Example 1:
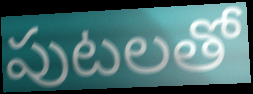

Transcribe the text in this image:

పుటలతో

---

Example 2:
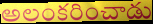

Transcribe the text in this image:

అలంకరించాడు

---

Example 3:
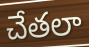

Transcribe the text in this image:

చేతలా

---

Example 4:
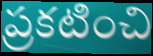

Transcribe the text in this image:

ప్రకటించి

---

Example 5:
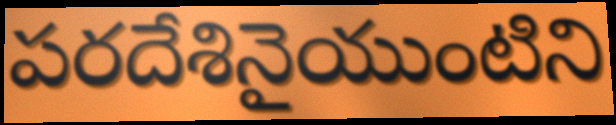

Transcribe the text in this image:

పరదేశినైయుంటిని